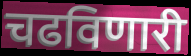
चढविणारी